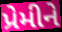
પ્રેમીને